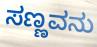
ಸಣ್ಣವನು